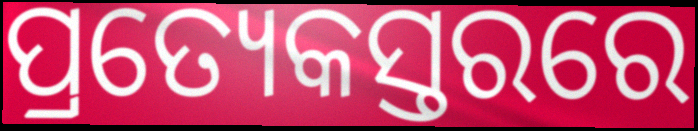
ପ୍ରତ୍ୟେକସ୍ତରରେ